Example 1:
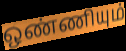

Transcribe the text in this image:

ஒண்ணியும்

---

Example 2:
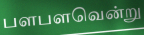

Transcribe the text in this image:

பளபளவென்று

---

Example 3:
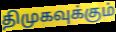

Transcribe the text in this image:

திமுகவுக்கும்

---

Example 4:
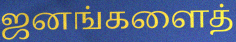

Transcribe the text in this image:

ஜனங்களைத்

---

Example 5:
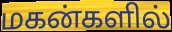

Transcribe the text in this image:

மகன்களில்